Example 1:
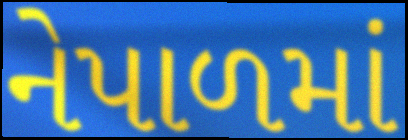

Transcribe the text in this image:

નેપાળમાં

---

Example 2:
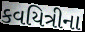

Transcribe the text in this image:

કવયિત્રીના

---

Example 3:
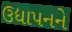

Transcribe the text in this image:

ઉદ્યાપનને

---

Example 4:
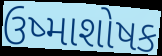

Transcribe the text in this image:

ઉષ્માશોષક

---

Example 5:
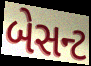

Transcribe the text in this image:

બેસન્ટ